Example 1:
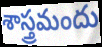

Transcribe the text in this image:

శాస్త్రమందు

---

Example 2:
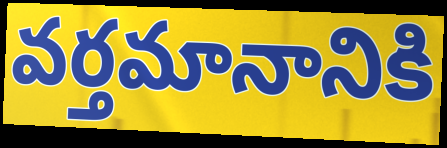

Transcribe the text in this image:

వర్తమానానికి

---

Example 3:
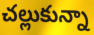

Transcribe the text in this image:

చల్లుకున్నా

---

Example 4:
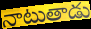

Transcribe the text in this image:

నాటుతాడు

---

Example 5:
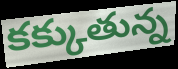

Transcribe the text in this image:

కక్కుతున్న